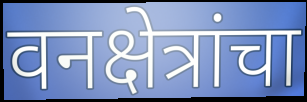
वनक्षेत्रांचा